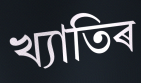
খ্যাতিৰ